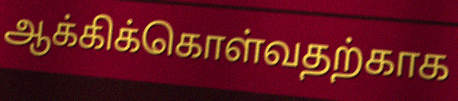
ஆக்கிக்கொள்வதற்காக